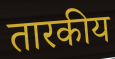
तारकीय